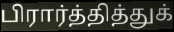
பிரார்த்தித்துக்